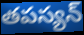
తపస్యన్